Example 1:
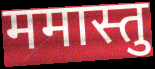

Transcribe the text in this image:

ममास्तु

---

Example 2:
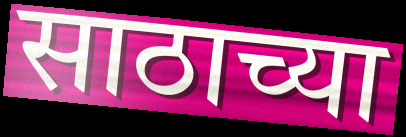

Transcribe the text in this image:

साठाच्या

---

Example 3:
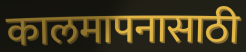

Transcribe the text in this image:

कालमापनासाठी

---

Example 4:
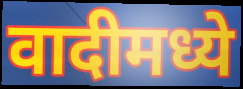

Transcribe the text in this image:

वादीमध्ये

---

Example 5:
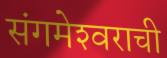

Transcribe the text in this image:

संगमेश्वराची